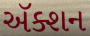
ઍક્શન